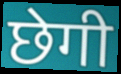
छेगी